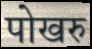
पोखरु